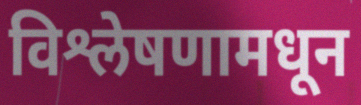
विश्लेषणामधून